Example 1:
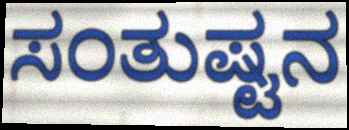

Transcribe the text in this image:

ಸಂತುಷ್ಟನ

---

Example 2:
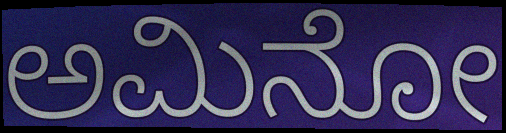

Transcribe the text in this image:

ಅಮಿನೋ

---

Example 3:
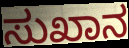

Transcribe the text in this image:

ಸುಖಾನ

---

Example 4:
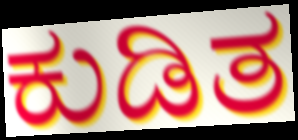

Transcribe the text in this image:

ಕುಡಿತ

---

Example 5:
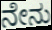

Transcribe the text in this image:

ನೇನು